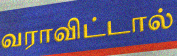
வராவிட்டால்